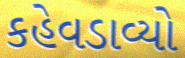
કહેવડાવ્યો